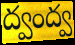
ద్వంద్వ